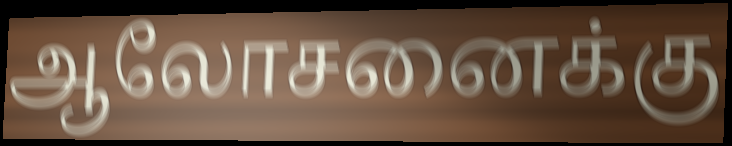
ஆலோசனைக்கு